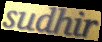
sudhir